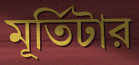
মূর্তিটার